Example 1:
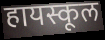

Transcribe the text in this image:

हायस्‍कूल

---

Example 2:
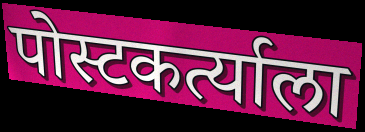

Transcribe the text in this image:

पोस्टकर्त्याला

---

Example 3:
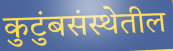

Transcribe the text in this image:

कुटुंबसंस्थेतील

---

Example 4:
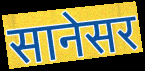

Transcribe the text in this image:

सानेसर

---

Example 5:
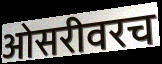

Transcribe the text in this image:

ओसरीवरच